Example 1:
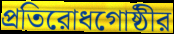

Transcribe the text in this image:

প্রতিরোধগোষ্ঠীর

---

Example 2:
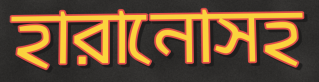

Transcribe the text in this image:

হারানোসহ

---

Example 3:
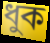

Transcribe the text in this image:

ধুক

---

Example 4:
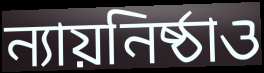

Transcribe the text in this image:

ন্যায়নিষ্ঠাও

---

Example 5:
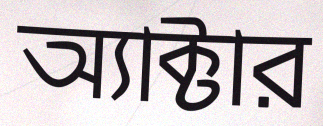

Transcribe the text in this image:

অ্যাক্টার